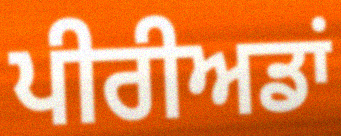
ਪੀਰੀਅਡਾਂ